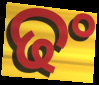
ଢଂ